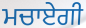
ਮਚਾਏਗੀ